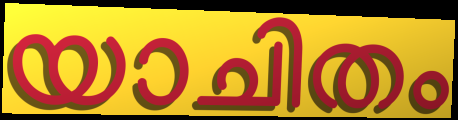
യാചിതം